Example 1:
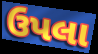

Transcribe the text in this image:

ઉપલા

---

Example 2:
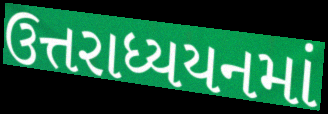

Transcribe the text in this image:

ઉત્તરાધ્યયનમાં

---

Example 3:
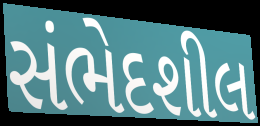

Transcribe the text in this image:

સંભેદશીલ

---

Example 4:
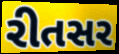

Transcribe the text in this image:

રીતસર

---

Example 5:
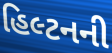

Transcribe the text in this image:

હિલ્ટનની